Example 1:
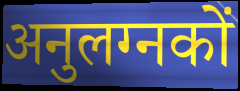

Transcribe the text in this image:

अनुलग्नकों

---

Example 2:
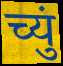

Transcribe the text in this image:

च्युं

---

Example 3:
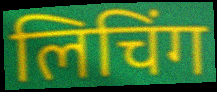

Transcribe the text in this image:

लिचिंग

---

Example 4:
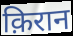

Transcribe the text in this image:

क़िरान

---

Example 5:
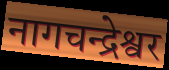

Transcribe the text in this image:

नागचन्द्रेश्वर